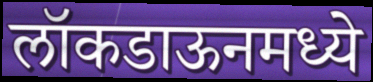
लॉकडाऊनमध्ये